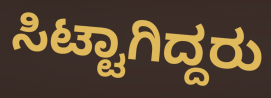
ಸಿಟ್ಟಾಗಿದ್ದರು